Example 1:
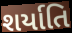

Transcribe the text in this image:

શર્યાતિ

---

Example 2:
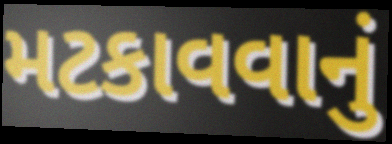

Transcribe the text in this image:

મટકાવવાનું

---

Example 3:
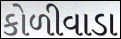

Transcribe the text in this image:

કોળીવાડા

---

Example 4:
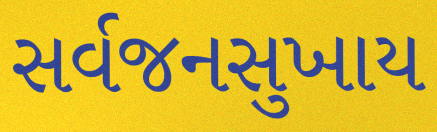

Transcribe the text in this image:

સર્વજનસુખાય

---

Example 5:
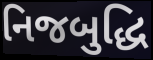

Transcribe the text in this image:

નિજબુદ્ધિ